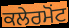
ਕਲੇਰਮੋਂਟ